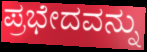
ಪ್ರಭೇದವನ್ನು